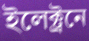
ইলেক্ট্ৰনে